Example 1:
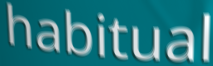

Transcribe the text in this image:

habitual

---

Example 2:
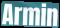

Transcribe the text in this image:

Armin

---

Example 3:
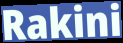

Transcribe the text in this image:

Rakini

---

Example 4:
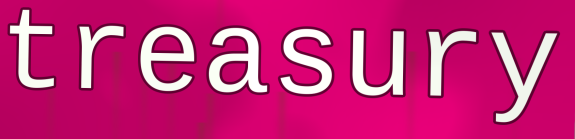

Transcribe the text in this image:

treasury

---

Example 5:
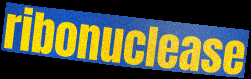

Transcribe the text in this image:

ribonuclease